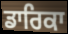
ਡਾਰਿਕਾ